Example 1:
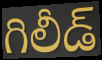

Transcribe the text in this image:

గిలీడ్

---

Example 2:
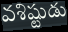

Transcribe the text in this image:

వశిష్టుడు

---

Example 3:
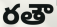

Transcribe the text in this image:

రతౌ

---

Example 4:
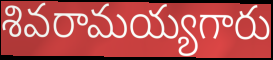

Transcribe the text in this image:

శివరామయ్యగారు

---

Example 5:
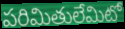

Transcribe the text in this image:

పరిమితులేమిటో